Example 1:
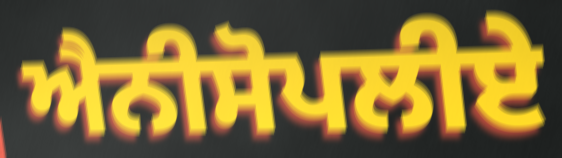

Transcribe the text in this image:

ਐਨੀਸੋਪਲੀਏ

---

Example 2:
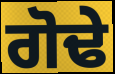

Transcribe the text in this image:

ਗੋਢੇ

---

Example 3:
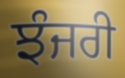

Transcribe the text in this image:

ਝੰਜਰੀ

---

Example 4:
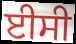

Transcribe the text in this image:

ਈਸੀ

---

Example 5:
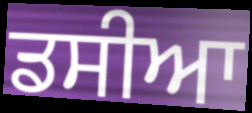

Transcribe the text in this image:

ਡਸੀਆ